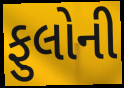
ફુલોની